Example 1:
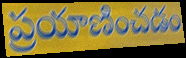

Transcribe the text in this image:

ప్రయాణించడం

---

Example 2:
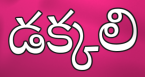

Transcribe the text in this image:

డక్కలి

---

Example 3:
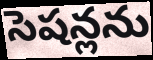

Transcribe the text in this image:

సెషన్లను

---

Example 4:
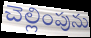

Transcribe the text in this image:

చెల్లింపును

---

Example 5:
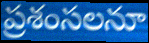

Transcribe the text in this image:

ప్రశంసలనూ